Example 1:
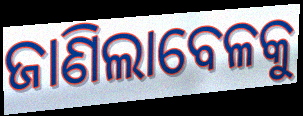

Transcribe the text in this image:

ଜାଣିଲାବେଳକୁ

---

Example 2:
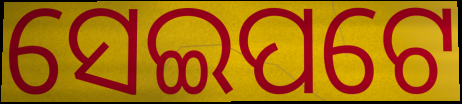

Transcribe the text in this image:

ସେଇପଟେ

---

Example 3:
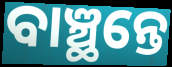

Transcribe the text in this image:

ବାଞ୍ଛନ୍ତେ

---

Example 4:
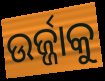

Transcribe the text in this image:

ଉର୍ଜ୍ଜାକୁ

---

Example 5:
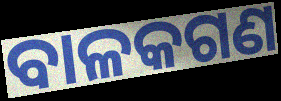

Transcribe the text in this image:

ବାଳକଗଣ